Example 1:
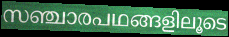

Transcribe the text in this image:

സഞ്ചാരപഥങ്ങളിലൂടെ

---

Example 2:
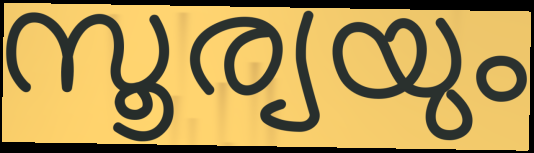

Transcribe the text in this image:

സൂര്യയും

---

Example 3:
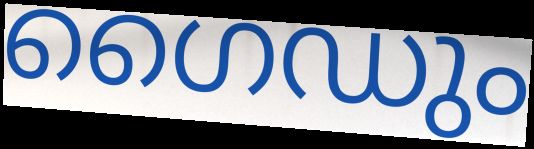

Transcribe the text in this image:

ഗൈഡും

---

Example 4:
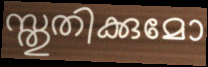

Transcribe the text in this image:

സ്തുതിക്കുമോ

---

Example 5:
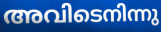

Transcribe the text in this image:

അവിടെനിന്നു